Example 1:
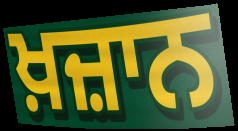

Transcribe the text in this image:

ਖ਼ਜ਼ਾਨ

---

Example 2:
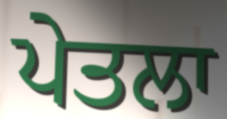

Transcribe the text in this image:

ਪੇਤਲਾ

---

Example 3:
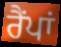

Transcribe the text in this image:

ਰੈਂਪਾਂ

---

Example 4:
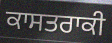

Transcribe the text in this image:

ਕਾਸਤਰਾਕੀ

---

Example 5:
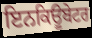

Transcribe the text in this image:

ਇਨਕਿਊਬੇਟਰ